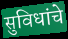
सुविधांचे